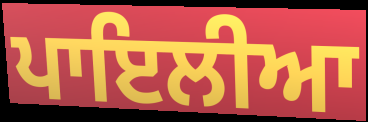
ਪਾਇਲੀਆ